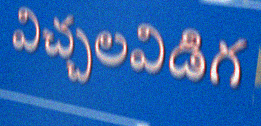
విచ్చలవిడిగ